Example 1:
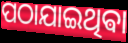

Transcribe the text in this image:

ପଠାଯାଇଥିଵା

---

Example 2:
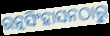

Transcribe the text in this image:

ରତ୍ନସିଂହାସନଠାରୁ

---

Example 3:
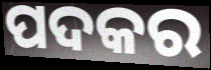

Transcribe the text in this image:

ପଦକର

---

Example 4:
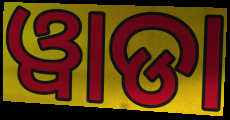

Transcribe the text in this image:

ୱାଡା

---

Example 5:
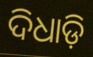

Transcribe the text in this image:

ଦିଧାଡ଼ି